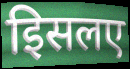
इिसलए